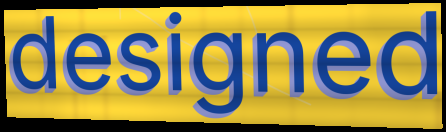
designed